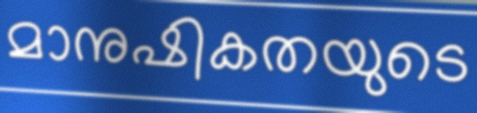
മാനുഷികതയുടെ